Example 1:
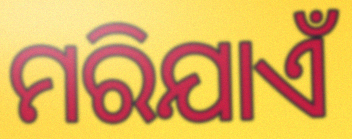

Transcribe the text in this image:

ମରିଯାଏଁ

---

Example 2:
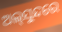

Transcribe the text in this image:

ଅଲ୍‌ସୁନ୍ଦରେ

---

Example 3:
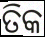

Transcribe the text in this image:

ତିକ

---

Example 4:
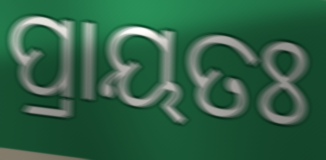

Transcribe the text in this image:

ପ୍ରାୟତଃ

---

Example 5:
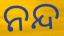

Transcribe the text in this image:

ନନ୍ଦ